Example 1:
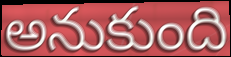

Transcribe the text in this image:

అనుకుంది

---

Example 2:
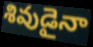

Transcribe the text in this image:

శివుడైనా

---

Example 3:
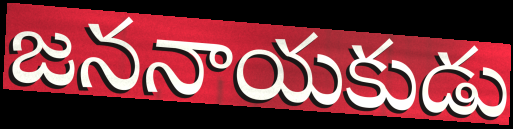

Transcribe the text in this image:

జననాయకుడు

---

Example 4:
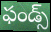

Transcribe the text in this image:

ఫండ్స్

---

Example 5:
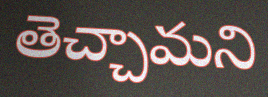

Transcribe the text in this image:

తెచ్చామని